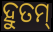
ହୁତମ୍